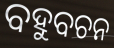
ବହୁବଚନ